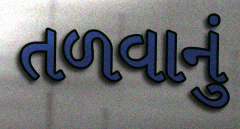
તળવાનું